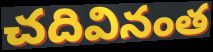
చదివినంత